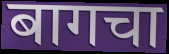
बागचा